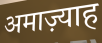
अमाज़्याह